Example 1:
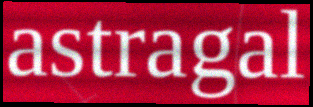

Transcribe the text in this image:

astragal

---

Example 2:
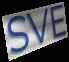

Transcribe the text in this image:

SVE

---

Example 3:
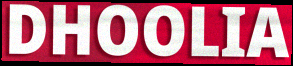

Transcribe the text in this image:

DHOOLIA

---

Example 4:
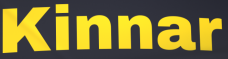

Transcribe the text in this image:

Kinnar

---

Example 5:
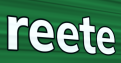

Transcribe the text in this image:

reete